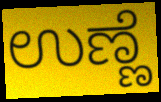
ಉಣ್ಣೆ